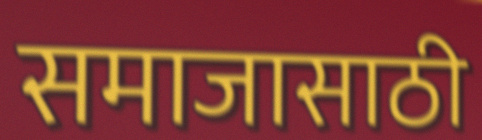
समाजासाठी